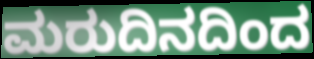
ಮರುದಿನದಿಂದ